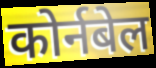
कोर्नबेल